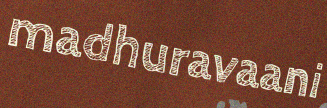
madhuravaani